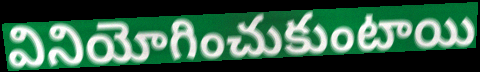
వినియోగించుకుంటాయి